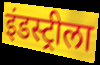
इंडस्ट्रीला